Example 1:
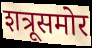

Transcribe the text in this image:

शत्रूसमोर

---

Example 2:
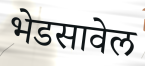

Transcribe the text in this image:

भेडसावेल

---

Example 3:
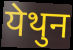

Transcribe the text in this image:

येथुन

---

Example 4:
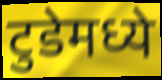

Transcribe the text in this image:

टुडेमध्ये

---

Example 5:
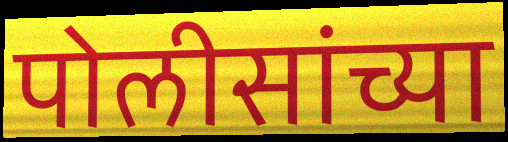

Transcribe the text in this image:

पोलीसांच्या